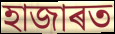
হাজাৰত